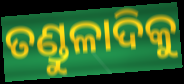
ତଣ୍ଡୁଳାଦିକୁ